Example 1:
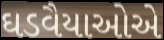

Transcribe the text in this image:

ઘડવૈયાઓએ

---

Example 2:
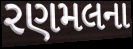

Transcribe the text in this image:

રણમલના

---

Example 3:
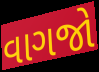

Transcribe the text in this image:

વાગજો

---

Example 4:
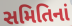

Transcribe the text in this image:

સમિતિનાં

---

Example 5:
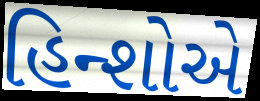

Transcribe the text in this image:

હિન્શોએ